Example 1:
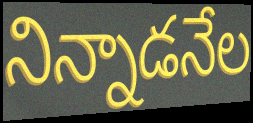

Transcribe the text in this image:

నిన్నాడనేల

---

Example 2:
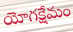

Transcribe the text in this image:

యోగక్షేమం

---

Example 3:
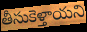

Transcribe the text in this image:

తీసుకెళ్తాయని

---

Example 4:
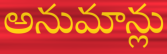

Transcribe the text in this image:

అనుమాన్లు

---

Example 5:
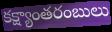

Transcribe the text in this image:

కక్ష్యాంతరంబులు